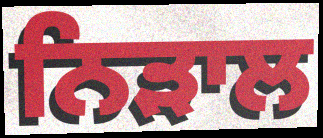
ਨਿੜਾਲ